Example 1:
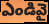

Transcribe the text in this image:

ఎండివై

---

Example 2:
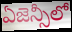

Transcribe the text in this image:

ఏజెన్సీలో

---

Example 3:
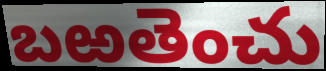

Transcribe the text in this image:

బఱతెంచు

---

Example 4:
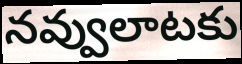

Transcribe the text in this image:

నవ్వులాటకు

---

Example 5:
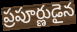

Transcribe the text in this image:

ప్రపూర్ణుడైన